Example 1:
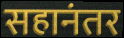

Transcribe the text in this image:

सहानंतर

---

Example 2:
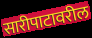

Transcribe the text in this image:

सारीपाटावरील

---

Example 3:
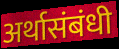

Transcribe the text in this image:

अर्थासंबंधी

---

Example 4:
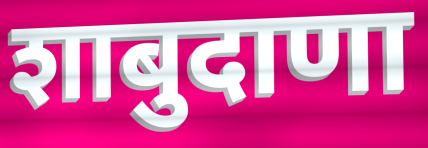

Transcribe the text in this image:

शाबुदाणा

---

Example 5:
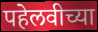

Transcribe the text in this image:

पहेलवीच्या